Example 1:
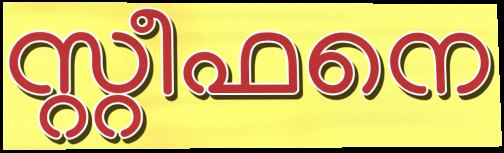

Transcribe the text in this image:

സ്റ്റീഫനെ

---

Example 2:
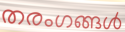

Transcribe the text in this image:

തരംഗങ്ങൾ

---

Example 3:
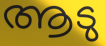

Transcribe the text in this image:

ആടു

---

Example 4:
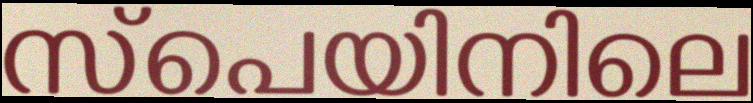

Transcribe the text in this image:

സ്‌പെയിനിലെ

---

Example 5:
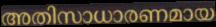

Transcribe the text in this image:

അതിസാധാരണമായ